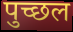
पुच्छल